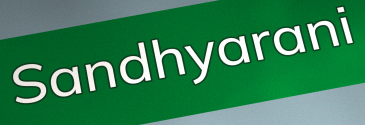
Sandhyarani